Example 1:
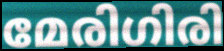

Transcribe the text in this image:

മേരിഗിരി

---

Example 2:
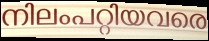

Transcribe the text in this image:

നിലംപറ്റിയവരെ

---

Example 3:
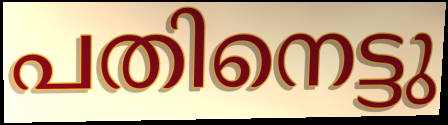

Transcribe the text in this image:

പതിനെട്ടു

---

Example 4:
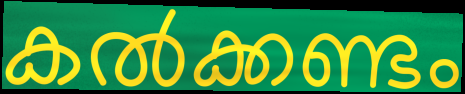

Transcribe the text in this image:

കൽക്കണ്ടം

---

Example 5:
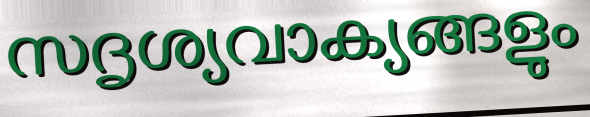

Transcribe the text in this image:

സദൃശ്യവാക്യങ്ങളും